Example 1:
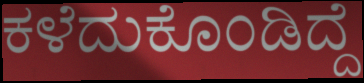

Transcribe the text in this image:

ಕಳೆದುಕೊಂಡಿದ್ದೆ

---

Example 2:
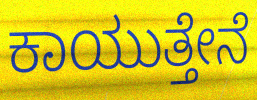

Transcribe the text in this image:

ಕಾಯುತ್ತೇನೆ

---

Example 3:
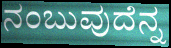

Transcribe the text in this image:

ನಂಬುವುದೆನ್ನ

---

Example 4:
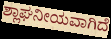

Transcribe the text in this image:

ಶ್ಲಾಘನೀಯವಾಗಿದೆ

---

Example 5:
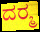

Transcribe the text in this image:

ದರ‍್ಮ